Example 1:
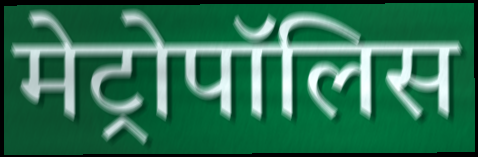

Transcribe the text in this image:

मेट्रोपॉलिस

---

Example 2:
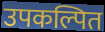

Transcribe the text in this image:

उपकल्पित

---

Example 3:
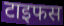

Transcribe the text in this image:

टाइफस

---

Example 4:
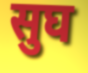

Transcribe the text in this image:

सुघ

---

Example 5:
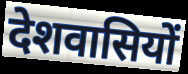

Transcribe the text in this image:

देशवासियों